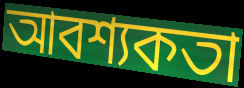
আবশ্যকতা